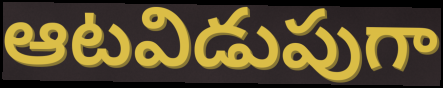
ఆటవిడుపుగా